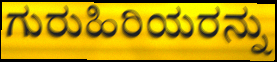
ಗುರುಹಿರಿಯರನ್ನು